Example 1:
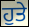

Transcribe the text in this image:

ਹੁਤੇ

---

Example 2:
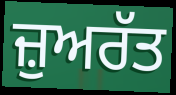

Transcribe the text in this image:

ਜ਼ੁਅਰੱਤ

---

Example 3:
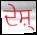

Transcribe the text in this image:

ਦੇਸ਼੍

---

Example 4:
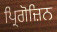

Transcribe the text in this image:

ਪ੍ਰਿਗੋਜ਼ਿਨ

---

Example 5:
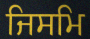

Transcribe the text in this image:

ਜਿਸਮਿ